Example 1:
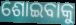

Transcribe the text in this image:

ଶୋଇବାକୁ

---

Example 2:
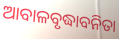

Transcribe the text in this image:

ଆବାଳବୃଦ୍ଧାବନିତା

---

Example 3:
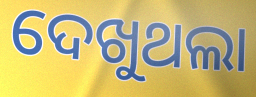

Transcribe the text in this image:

ଦେଖୁଥଲା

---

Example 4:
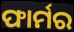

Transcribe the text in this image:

ଫାର୍ମର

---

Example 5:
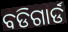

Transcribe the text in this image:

ବଡିଗାର୍ଡ